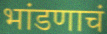
भांडणाचं